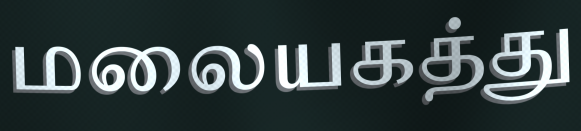
மலையகத்து